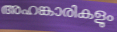
അഹങ്കാരികളും